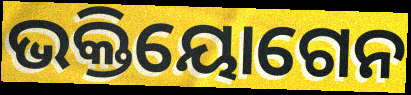
ଭକ୍ତିୟୋଗେନ